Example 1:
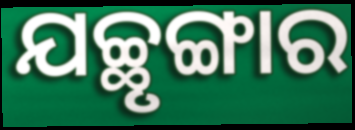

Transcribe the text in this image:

ଯଚ୍ଛୃଙ୍ଗାର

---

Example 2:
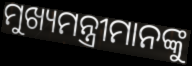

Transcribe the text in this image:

ମୁଖ୍ୟମନ୍ତ୍ରୀମାନଙ୍କୁ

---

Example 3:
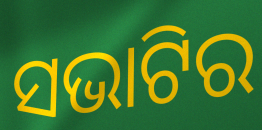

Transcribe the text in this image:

ସଭାଟିର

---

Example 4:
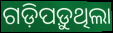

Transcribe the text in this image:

ଗଡ଼ିପଡ଼ୁଥିଲା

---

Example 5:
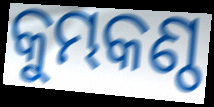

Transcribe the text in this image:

କୁମ୍ଭକଣ୍ଠ